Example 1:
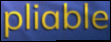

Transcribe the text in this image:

pliable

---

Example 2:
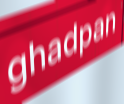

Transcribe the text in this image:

ghadpan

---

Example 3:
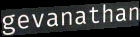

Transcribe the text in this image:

gevanathan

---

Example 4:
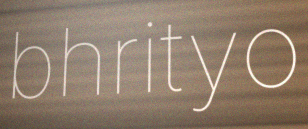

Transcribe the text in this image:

bhrityo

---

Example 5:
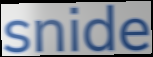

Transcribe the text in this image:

snide